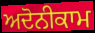
ਅਦੋਨੀਕਾਮ